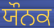
ਯੌਨਕ